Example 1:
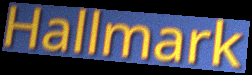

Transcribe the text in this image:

Hallmark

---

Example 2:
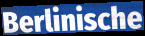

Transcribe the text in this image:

Berlinische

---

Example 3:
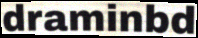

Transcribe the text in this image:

draminbd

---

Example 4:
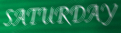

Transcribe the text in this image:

SATURDAY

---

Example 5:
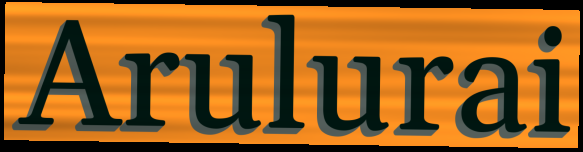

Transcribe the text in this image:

Arulurai